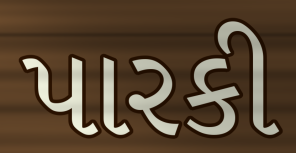
પારકી